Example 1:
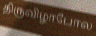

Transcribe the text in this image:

திருவிழாபோல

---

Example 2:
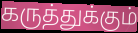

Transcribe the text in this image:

கருத்துக்கும்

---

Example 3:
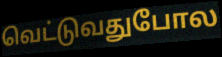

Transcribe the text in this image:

வெட்டுவதுபோல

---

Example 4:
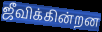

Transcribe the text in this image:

ஜீவிக்கின்றன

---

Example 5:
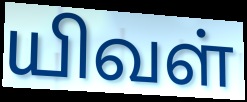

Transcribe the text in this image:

யிவள்